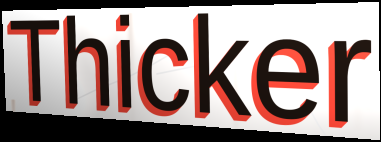
Thicker